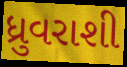
ધ્રુવરાશી